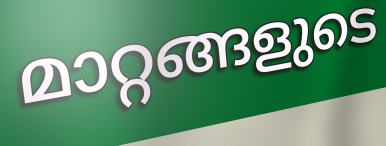
മാറ്റങ്ങളുടെ